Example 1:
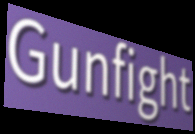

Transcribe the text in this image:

Gunfight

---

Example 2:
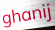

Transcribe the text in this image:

ghanij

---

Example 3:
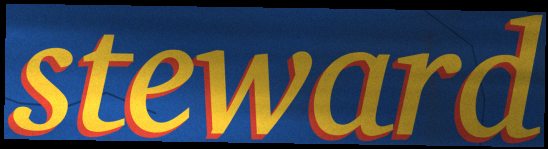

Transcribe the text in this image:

steward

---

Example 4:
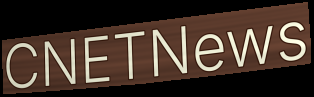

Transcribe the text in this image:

CNETNews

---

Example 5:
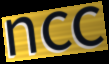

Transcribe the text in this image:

ncc